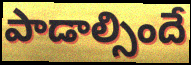
పాడాల్సిందే